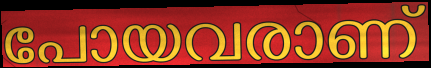
പോയവരാണ്